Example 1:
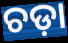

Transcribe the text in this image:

ଚଡ଼ା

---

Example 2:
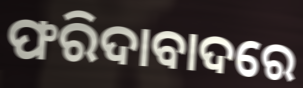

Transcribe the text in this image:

ଫରିଦାବାଦରେ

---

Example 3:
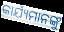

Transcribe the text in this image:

କାର୍ଯ୍ୟମାନଙ୍କୁ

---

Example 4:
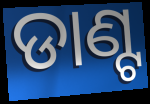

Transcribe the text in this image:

ଡାଣ୍ଟ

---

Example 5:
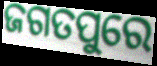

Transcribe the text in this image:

ଜଗତପୁରେ